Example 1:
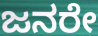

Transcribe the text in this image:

ಜನರೇ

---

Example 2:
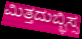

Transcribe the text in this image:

ಮಿತ್ತದುಬ್ಭಿಸ್ಸ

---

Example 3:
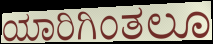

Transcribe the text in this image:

ಯಾರಿಗಿಂತಲೂ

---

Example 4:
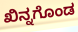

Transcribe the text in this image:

ಖಿನ್ನಗೊಂಡ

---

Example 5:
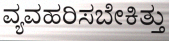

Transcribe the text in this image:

ವ್ಯವಹರಿಸಬೇಕಿತ್ತು